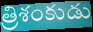
త్రిశంకుడు